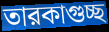
তারকাগুচ্ছ